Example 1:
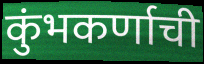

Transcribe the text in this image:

कुंभकर्णाची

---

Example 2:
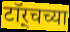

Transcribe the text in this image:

टॉर्चच्या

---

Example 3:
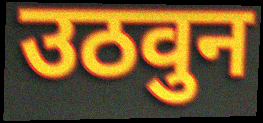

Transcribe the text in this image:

उठवुन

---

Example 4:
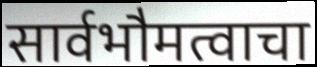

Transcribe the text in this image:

सार्वभौमत्वाचा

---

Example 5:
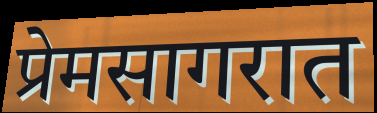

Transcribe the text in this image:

प्रेमसागरात